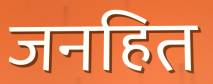
जनहित